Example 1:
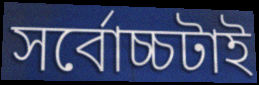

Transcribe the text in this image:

সর্বোচ্চটাই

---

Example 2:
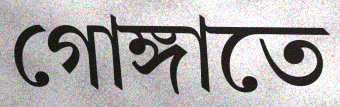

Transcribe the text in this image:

গোঙ্গাতে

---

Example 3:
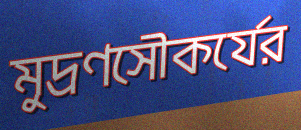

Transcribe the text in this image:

মুদ্রণসৌকর্যের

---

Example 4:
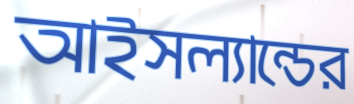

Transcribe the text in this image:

আইসল্যান্ডের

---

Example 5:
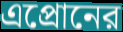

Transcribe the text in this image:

এপ্রোনের